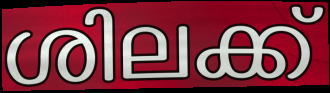
ശിലക്ക്